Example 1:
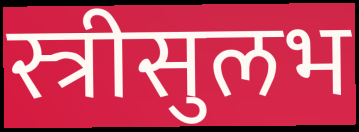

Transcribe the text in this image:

स्त्रीसुलभ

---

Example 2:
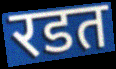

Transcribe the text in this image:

रडत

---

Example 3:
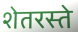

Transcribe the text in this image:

शेतरस्ते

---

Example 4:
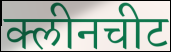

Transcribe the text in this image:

क्लीनचीट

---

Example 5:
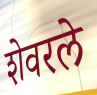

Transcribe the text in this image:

शेवरले